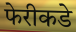
फेरीकडे